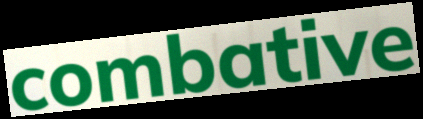
combative